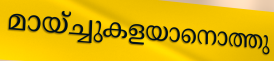
മായ്ച്ചുകളയാനൊത്തു